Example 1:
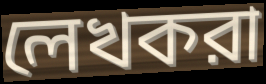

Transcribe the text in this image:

লেখকরা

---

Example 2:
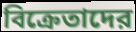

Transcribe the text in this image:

বিক্রেতাদের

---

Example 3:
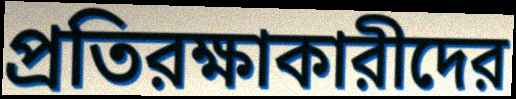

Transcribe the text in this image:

প্রতিরক্ষাকারীদের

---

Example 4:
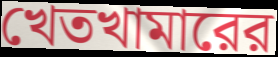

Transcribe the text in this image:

খেতখামারের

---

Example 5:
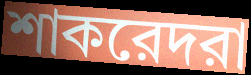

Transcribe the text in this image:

শাকরেদরা